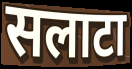
सलाटा